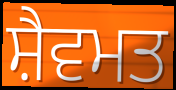
ਸ਼ੈਵਮਤ